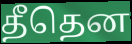
தீதென